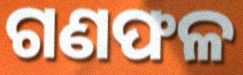
ଗଣଫଳ